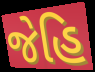
જેહિ